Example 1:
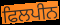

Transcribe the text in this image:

ਫਿਲਪੀਨ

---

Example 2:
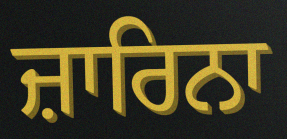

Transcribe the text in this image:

ਜ਼ਾਰਿਨਾ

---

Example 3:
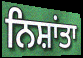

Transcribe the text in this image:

ਨਿਸ਼ਾਂਤਾ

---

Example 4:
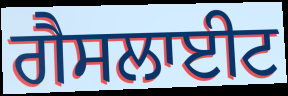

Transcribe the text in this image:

ਗੈਸਲਾਈਟ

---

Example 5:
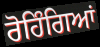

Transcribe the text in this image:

ਰੋਹਿੰਗਿਆਂ